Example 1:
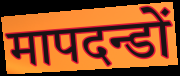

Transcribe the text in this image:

मापदन्डों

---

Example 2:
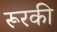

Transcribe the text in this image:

रूरकी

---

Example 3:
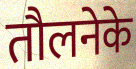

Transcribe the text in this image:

तौलनेके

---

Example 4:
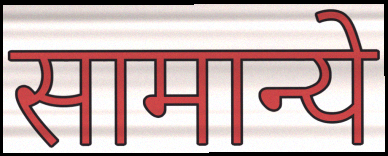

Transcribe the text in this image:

सामान्ये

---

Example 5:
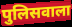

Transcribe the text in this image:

पुलिसवाला